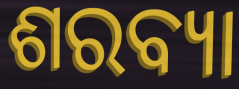
ଶରବ୍ୟା